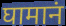
घामानं